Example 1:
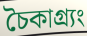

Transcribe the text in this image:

চৈকাগ্র্যং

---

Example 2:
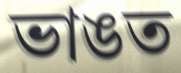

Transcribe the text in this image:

ভাঙত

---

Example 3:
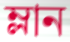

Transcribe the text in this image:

ম্লান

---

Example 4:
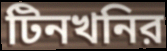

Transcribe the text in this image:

টিনখনির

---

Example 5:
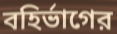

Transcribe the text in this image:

বহির্ভাগের